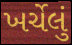
ખર્ચેલું